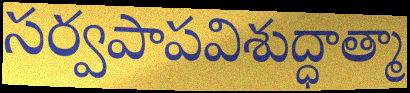
సర్వపాపవిశుద్ధాత్మా